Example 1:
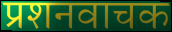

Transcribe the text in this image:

प्रशनवाचक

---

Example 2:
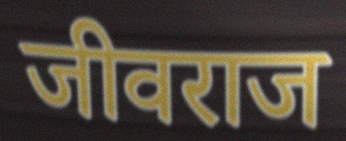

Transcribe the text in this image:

जीवराज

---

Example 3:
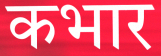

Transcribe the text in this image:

कभार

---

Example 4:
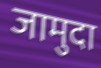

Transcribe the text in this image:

जामुदा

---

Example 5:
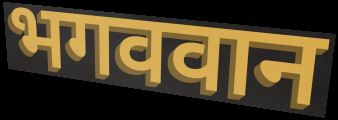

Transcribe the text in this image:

भगववान